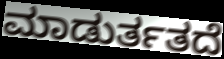
ಮಾಡುರ್ತತದೆ